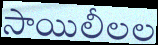
సాయిలీలల